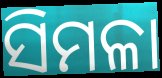
ସିମଳା